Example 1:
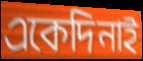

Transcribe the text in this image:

একেদিনাই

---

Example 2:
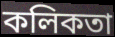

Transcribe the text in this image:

কলিকতা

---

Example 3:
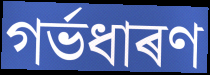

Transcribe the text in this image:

গৰ্ভধাৰণ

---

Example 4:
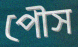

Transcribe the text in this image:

পৌস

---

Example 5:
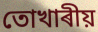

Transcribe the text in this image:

তোখাৰীয়